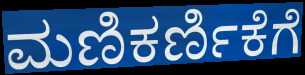
ಮಣಿಕರ್ಣಿಕೆಗೆ